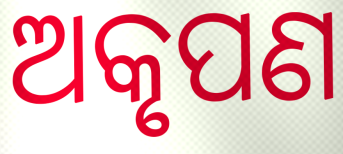
ଅକୃପଣ